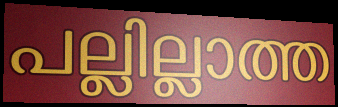
പല്ലില്ലാത്ത